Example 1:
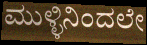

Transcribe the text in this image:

ಮುಳ್ಳಿನಿಂದಲೇ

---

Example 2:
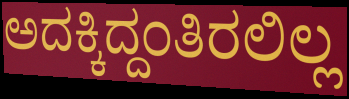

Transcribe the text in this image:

ಅದಕ್ಕಿದ್ದಂತಿರಲಿಲ್ಲ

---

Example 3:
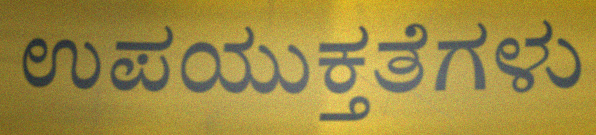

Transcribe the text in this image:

ಉಪಯುಕ್ತತೆಗಳು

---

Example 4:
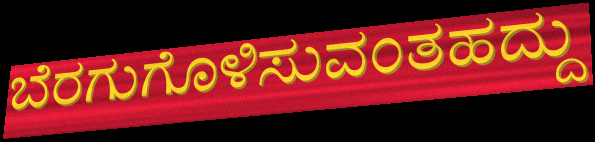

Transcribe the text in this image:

ಬೆರಗುಗೊಳಿಸುವಂತಹದ್ದು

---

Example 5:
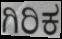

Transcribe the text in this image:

ಗಿರಿಕ